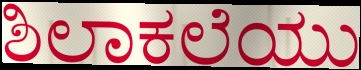
ಶಿಲಾಕಲೆಯು